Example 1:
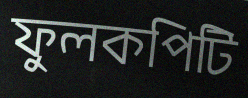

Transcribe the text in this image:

ফুলকপিটি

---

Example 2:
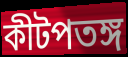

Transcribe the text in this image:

কীটপতঙ্গ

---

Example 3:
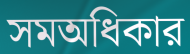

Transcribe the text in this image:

সমঅধিকার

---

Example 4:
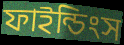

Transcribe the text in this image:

ফাইন্ডিংস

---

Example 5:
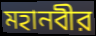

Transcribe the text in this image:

মহানবীর